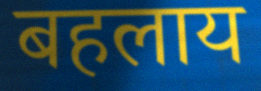
बहलाय